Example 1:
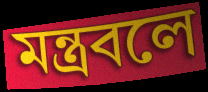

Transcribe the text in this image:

মন্ত্রবলে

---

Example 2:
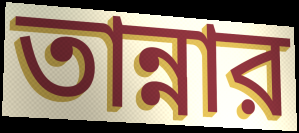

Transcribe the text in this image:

তান্নার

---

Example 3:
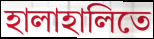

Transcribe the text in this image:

হালাহালিতে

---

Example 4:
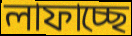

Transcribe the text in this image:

লাফাচ্ছে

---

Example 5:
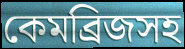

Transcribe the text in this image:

কেমব্রিজসহ